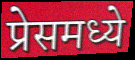
प्रेसमध्ये